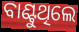
ବାଣ୍ଟୁଥିଲେ